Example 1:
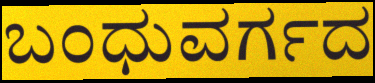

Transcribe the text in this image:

ಬಂಧುವರ್ಗದ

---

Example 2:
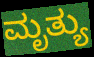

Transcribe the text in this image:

ಮೃತ್ಯು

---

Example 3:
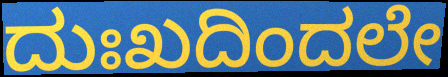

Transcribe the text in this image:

ದುಃಖದಿಂದಲೇ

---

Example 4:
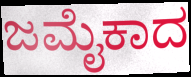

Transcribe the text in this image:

ಜಮೈಕಾದ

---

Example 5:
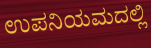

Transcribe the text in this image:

ಉಪನಿಯಮದಲ್ಲಿ